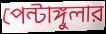
পেন্টাঙ্গুলার